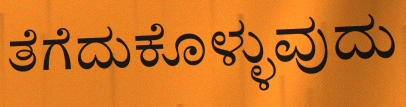
ತೆಗೆದುಕೊಳ್ಳುವುದು